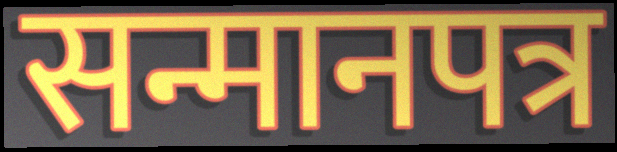
सन्मानपत्र